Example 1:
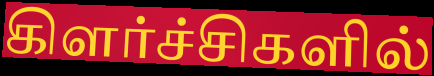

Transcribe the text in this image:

கிளர்ச்சிகளில்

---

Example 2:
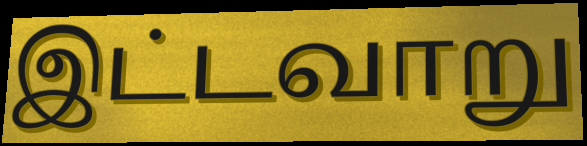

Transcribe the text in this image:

இட்டவாறு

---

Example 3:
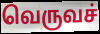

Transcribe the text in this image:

வெருவச்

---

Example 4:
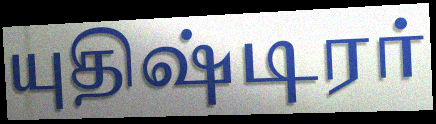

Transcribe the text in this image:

யுதிஷ்டிரர்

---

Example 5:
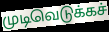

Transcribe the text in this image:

முடிவெடுக்கச்